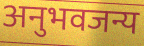
अनुभवजन्य